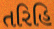
તરિહિ